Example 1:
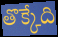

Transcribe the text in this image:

తొక్కేది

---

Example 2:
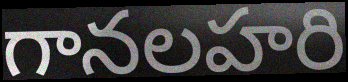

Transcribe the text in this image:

గానలహరి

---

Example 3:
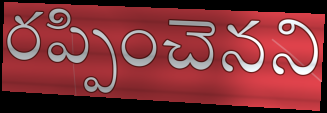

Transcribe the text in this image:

రప్పించెనని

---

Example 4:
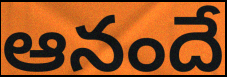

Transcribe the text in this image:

ఆనందే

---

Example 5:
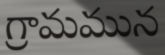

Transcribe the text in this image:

గ్రామమున